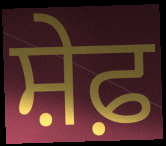
ਸ਼ੇਫ਼